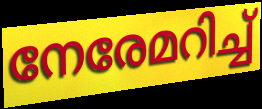
നേരേമറിച്ച്